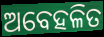
ଅବେହଳିତ